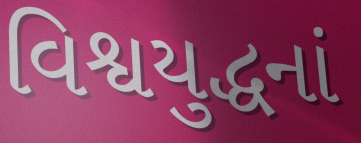
વિશ્વયુદ્ધનાં